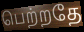
பெற்றதே